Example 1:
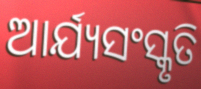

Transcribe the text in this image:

ଆର୍ଯ୍ୟସଂସ୍କୃତି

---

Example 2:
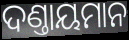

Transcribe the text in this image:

ଦଣ୍ତାୟମାନ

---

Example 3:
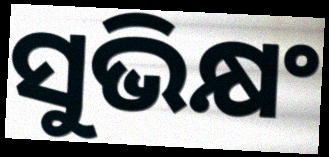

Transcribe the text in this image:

ସୁଭିକ୍ଷଂ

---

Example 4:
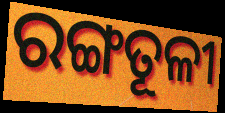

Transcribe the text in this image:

ରଙ୍ଗତୂଳୀ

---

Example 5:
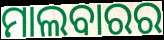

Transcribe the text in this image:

ମାଲବାରର